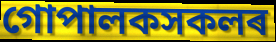
গোপালকসকলৰ